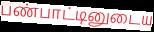
பண்பாட்டினுடைய